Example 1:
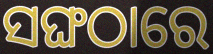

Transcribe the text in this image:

ସଙ୍ଘଠାରେ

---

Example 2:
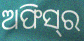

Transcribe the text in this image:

ଅଫିସ୍‌ର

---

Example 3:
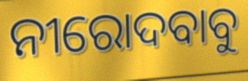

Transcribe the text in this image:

ନୀରୋଦବାବୁ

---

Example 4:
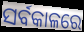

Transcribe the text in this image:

ସର୍ବକାଳରେ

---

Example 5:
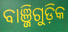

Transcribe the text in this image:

ବାଞ୍ଜିଗୁଡ଼ିକ